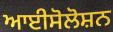
ਆਈਸੋਲੋਸ਼ਨ